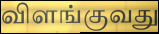
விளங்குவது